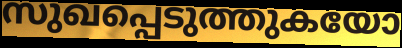
സുഖപ്പെടുത്തുകയോ